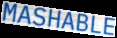
MASHABLE